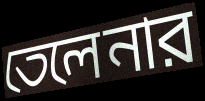
তেলেনার